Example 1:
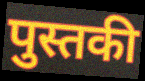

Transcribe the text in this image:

पुस्तकी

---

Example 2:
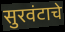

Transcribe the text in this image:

सुरवंटाचे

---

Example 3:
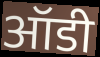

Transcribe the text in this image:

ऑडी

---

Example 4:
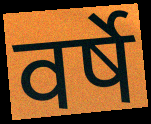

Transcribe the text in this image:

वर्षे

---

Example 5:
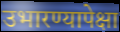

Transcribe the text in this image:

उभारण्यापेक्षा